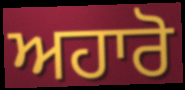
ਅਹਾਰੋ